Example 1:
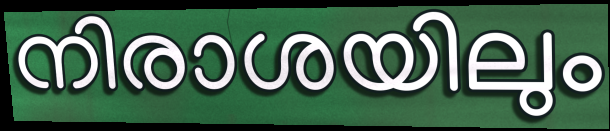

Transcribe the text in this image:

നിരാശയിലും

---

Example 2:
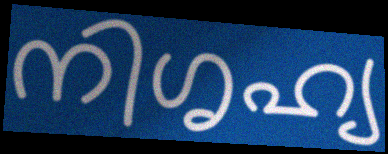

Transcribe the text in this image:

നിഗൃഹ്യ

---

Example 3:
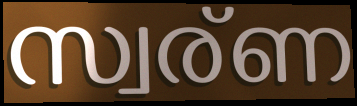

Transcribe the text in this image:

സ്വര്ണ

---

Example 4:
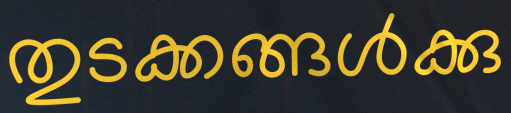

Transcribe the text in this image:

തുടക്കങ്ങൾക്കു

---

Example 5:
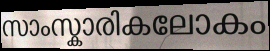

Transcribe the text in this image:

സാംസ്കാരികലോകം